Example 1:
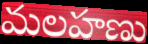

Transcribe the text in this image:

మలహణు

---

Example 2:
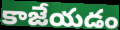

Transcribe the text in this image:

కాజేయడం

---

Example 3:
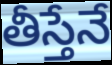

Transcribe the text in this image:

తీస్తేనే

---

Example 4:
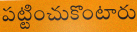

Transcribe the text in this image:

పట్టించుకొంటారు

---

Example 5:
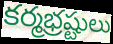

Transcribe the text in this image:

కర్మభ్రష్టులు